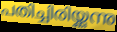
പതിച്ചിരിയ്ക്കുന്നു